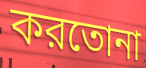
করতোনা